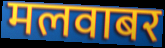
मलवाबर